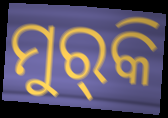
ମୁର୍‌କି